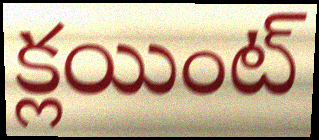
క్లయింట్